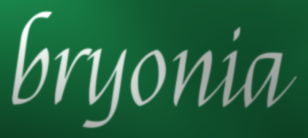
bryonia